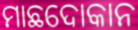
ମାଛଦୋକାନ